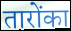
तारोंका